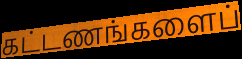
கட்டணங்களைப்